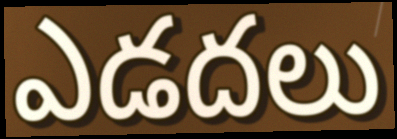
ఎడదలు